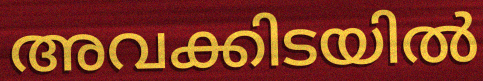
അവക്കിടയിൽ